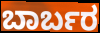
ಬಾರ್ಬರ